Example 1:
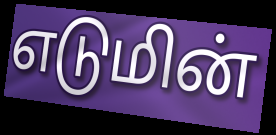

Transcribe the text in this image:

எடுமின்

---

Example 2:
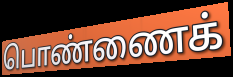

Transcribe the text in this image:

பொண்ணைக்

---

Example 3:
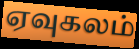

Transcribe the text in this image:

ஏவுகலம்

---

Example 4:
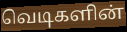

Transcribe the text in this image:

வெடிகளின்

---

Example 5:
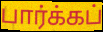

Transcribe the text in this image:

பார்க்கப்